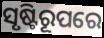
ସୃଷ୍ଟିରୂପରେ